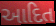
આદિત